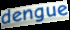
dengue